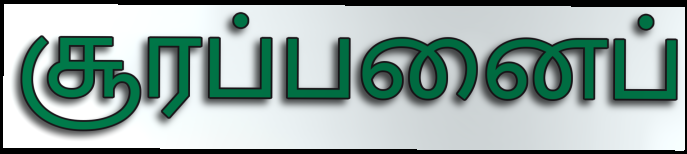
சூரப்பனைப்